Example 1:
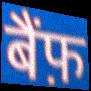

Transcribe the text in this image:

बैंफ़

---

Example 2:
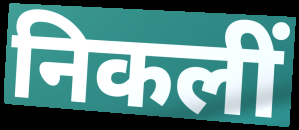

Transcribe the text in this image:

निकलीं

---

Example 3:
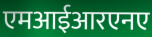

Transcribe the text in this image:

एमआईआरएनए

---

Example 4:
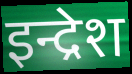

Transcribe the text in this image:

इन्द्रेश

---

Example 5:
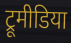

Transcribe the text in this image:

ट्रूमीडिया